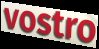
vostro